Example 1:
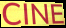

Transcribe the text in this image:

CINE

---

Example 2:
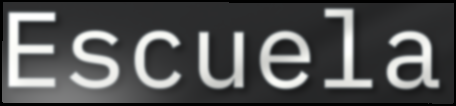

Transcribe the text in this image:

Escuela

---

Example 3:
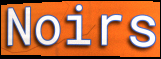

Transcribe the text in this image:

Noirs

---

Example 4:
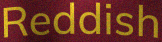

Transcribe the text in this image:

Reddish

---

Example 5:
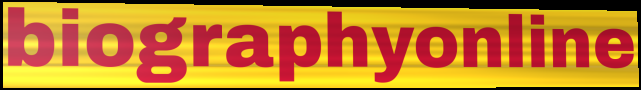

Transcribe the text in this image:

biographyonline